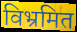
विभ्रमित